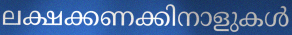
ലക്ഷക്കണക്കിനാളുകൾ